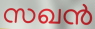
സഖൻ